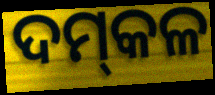
ଦମ୍‌କଳ